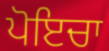
ਪੋਇਚਾ